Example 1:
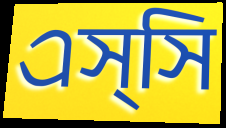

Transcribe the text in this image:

এস্‌সি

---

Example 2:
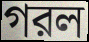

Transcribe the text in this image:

গরল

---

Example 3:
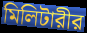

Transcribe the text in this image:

মিলিটারীর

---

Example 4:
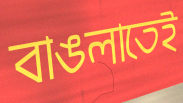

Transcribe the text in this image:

বাঙলাতেই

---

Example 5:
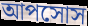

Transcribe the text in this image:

আপসোস